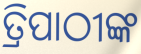
ତ୍ରିପାଠୀଙ୍କ